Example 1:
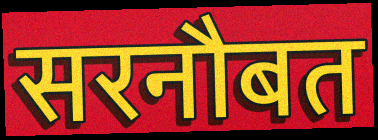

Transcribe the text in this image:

सरनौबत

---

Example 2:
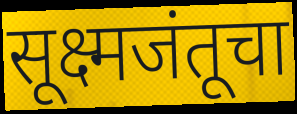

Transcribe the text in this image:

सूक्ष्मजंतूचा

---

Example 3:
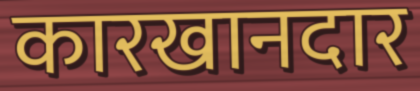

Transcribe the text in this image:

कारखानदार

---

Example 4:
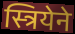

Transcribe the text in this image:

स्त्रियेने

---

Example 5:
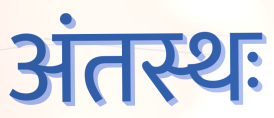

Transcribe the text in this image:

अंतस्थः